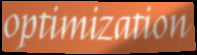
optimization